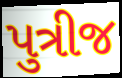
પુત્રીજ